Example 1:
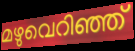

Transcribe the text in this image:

മഴുവെറിഞ്ഞ്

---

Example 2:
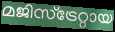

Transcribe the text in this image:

മജിസ്ട്രേറ്റായ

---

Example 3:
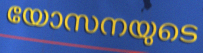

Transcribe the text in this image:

യോസനയുടെ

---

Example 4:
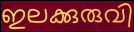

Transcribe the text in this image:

ഇലക്കുരുവി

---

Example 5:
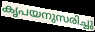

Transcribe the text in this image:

കൃപയനുസരിച്ചു